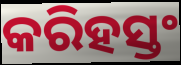
କରିହସ୍ତଂ